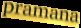
pramana